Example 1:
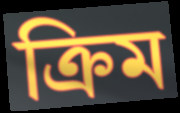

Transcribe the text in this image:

ক্রিম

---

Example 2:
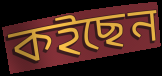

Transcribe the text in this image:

কইছেন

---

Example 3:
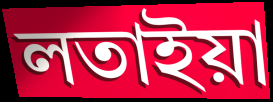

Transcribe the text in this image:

লতাইয়া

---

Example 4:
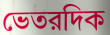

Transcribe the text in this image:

ভেতরদিক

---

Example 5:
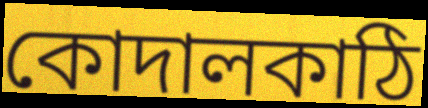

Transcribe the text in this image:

কোদালকাঠি